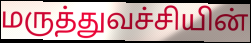
மருத்துவச்சியின்